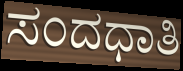
ಸಂದಧಾತಿ